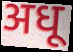
अधू